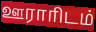
ஊராரிடம்